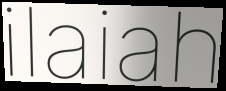
ilaiah